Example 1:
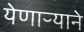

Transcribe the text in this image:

येणाऱ्याने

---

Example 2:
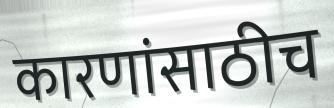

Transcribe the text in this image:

कारणांसाठीच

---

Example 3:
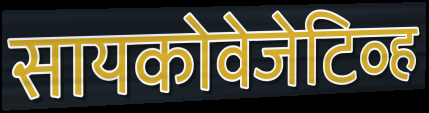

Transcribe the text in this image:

सायकोवेजेटिव्ह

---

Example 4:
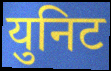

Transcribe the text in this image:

युनिट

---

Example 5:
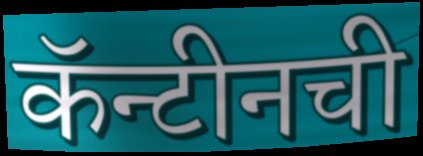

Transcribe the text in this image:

कॅन्टीनची